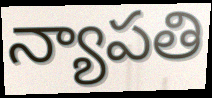
న్యాపతి